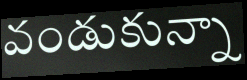
వండుకున్నా